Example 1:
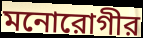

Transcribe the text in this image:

মনোরোগীর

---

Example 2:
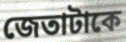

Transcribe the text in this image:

জেতাটাকে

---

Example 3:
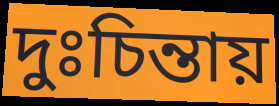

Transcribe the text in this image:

দুঃচিন্তায়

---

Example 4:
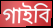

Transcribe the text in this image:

গাইবি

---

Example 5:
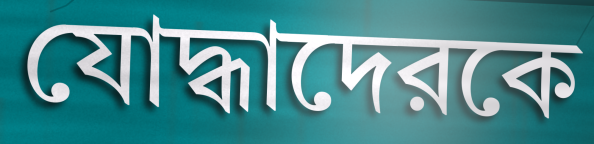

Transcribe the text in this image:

যোদ্ধাদেরকে